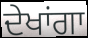
ਦੇਖਾਂਗਾ